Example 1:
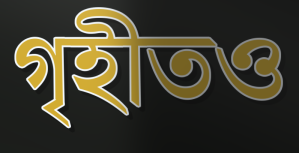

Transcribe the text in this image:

গৃহীতও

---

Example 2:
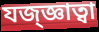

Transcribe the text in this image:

যজ্জ্ঞাত্বা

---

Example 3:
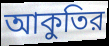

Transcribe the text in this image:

আকুতির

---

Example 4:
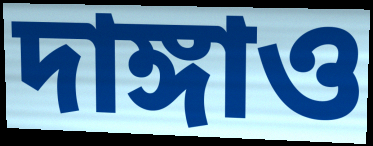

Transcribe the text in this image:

দাঙ্গাও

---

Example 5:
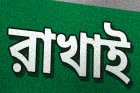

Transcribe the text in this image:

রাখাই